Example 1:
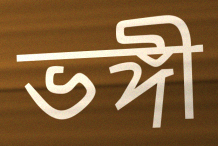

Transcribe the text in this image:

ভঙ্গী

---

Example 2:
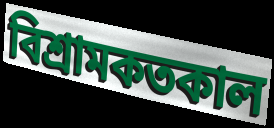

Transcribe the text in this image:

বিশ্রামকতকাল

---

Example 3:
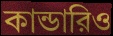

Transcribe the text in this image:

কান্ডারিও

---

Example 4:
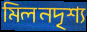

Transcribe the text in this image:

মিলনদৃশ্য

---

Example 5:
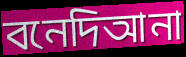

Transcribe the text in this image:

বনেদিআনা